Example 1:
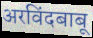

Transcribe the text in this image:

अरविंदबाबू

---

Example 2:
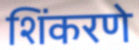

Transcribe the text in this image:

शिंकरणे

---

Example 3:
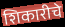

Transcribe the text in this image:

शिकारीचे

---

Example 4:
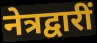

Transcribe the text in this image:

नेत्रद्वारीं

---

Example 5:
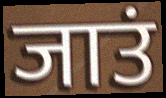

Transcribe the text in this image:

जाउं